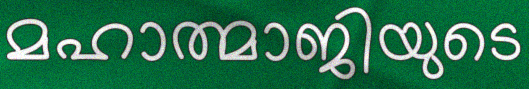
മഹാത്മാജിയുടെ